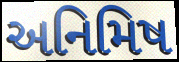
અનિમિષ